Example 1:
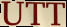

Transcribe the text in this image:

UTT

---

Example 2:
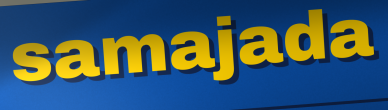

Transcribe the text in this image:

samajada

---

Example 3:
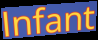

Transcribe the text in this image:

Infant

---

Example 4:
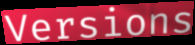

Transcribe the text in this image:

Versions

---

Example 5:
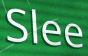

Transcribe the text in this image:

Slee